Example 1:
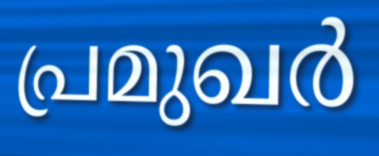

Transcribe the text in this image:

പ്രമുഖർ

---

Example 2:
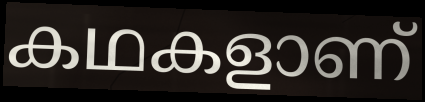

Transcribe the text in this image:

കഥകളാണ്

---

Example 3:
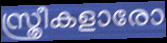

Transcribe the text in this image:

സ്ത്രീകളാരോ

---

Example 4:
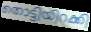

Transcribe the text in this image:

തൊട്ടിയിറക്കി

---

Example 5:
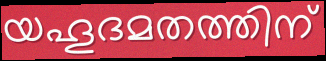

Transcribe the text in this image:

യഹൂദമതത്തിന്